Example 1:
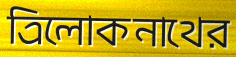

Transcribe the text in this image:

ত্রিলোকনাথের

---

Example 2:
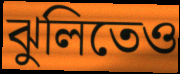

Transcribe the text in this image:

ঝুলিতেও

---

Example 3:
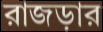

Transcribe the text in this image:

রাজড়ার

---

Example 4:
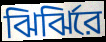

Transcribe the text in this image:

ঝির্ঝিরে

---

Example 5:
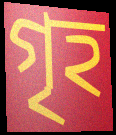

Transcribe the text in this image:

গৃহ